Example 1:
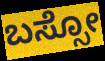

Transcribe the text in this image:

ಬಸ್ಸೋ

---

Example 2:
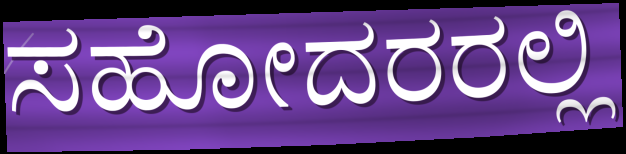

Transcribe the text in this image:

ಸಹೋದರರಲ್ಲಿ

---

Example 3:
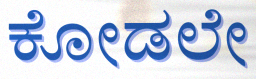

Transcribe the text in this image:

ಕೋಡಲೇ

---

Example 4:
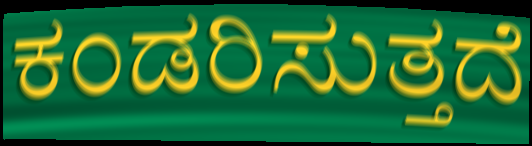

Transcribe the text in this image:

ಕಂಡರಿಸುತ್ತದೆ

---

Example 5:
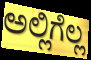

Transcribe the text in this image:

ಅಲ್ಲಿಗೆಲ್ಲ